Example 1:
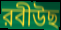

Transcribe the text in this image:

রবীউছ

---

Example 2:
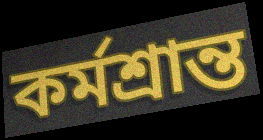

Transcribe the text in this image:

কর্মশ্রান্ত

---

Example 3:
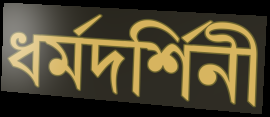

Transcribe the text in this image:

ধর্মদর্শিনী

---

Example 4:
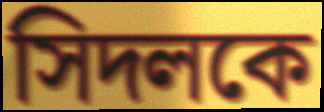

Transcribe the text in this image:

সিদলকে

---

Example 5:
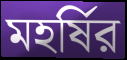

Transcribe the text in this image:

মহর্ষির